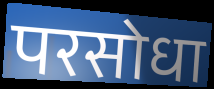
परसोधा